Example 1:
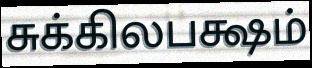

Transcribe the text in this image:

சுக்கிலபக்ஷம்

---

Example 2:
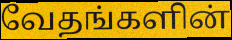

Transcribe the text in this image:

வேதங்களின்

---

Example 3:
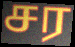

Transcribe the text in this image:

சர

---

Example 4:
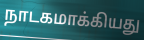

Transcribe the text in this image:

நாடகமாக்கியது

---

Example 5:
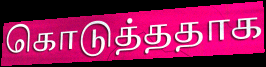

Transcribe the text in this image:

கொடுத்ததாக